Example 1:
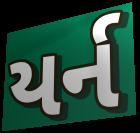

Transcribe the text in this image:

યર્ન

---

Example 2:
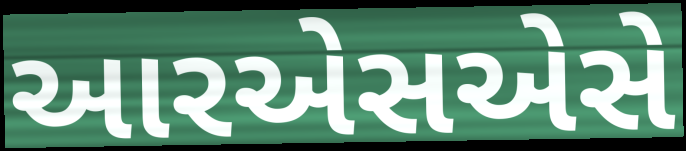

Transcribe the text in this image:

આરએસએસે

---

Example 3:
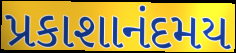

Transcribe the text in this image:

પ્રકાશાનંદમય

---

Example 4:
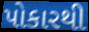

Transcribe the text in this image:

પોકારથી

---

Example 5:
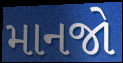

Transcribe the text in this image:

માનજો